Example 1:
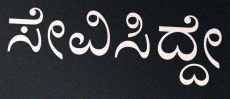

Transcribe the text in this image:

ಸೇವಿಸಿದ್ದೇ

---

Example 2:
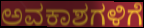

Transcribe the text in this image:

ಅವಕಾಶಗಳಿಗೆ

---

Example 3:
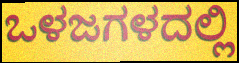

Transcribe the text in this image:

ಒಳಜಗಳದಲ್ಲಿ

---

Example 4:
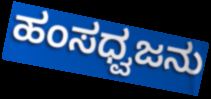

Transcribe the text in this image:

ಹಂಸಧ್ವಜನು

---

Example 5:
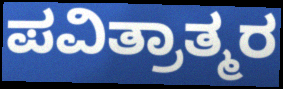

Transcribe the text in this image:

ಪವಿತ್ರಾತ್ಮರ